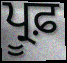
ਪ੍ਰੂਫ਼